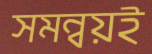
সমন্বয়ই